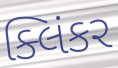
ક્લિંકર